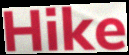
Hike